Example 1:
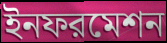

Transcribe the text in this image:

ইনফরমেশন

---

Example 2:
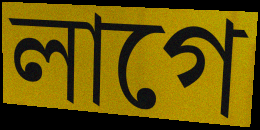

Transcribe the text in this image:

লাগে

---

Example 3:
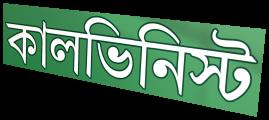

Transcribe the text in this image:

কালভিনিস্ট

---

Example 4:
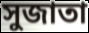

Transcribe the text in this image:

সুজাতা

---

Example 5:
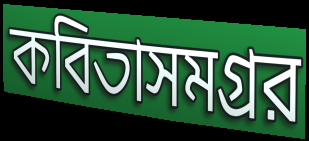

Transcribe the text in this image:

কবিতাসমগ্রর